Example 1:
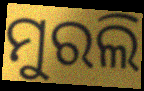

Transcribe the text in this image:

ମୁରଲି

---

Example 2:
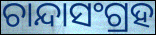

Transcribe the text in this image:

ଚାନ୍ଦାସଂଗ୍ରହ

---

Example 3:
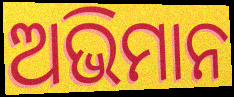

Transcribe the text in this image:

ଅଭିମାନ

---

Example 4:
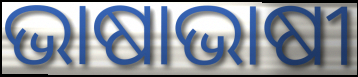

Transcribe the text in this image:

ଭାଷାଭାଷୀ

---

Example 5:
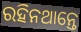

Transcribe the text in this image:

ରହିନଥାନ୍ତେ